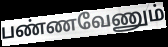
பண்ணவேணும்